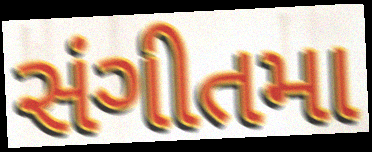
સંગીતમા